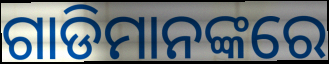
ଗାଡିମାନଙ୍କରେ